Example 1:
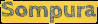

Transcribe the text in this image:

Sompura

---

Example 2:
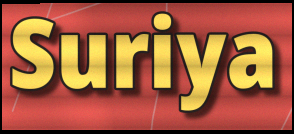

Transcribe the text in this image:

Suriya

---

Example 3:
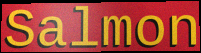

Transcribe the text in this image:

Salmon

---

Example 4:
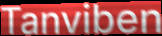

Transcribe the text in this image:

Tanviben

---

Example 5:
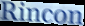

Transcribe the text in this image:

Rincon